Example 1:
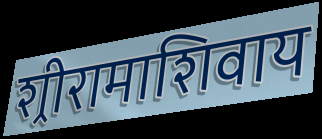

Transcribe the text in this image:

श्रीरामाशिवाय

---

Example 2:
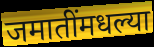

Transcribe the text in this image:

जमातींमधल्या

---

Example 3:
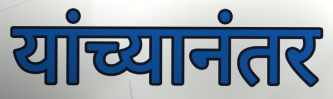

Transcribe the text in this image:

यांच्यानंतर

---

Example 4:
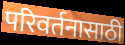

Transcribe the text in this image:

परिवर्तनासाठी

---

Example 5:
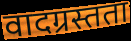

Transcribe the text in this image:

वादग्रस्तता